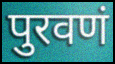
पुरवणं